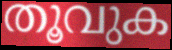
തൂവുക